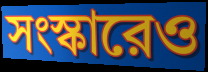
সংস্কারেও